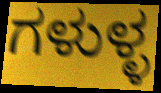
ಗಳುಳ್ಳ